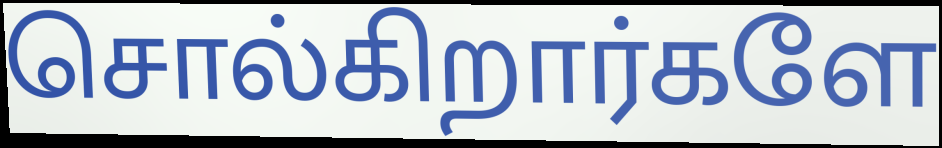
சொல்கிறார்களே